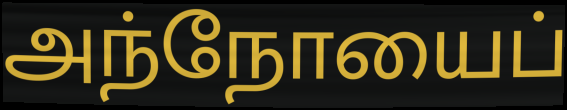
அந்நோயைப்